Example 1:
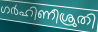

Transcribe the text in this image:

ഗർഹിണീശ്രുതി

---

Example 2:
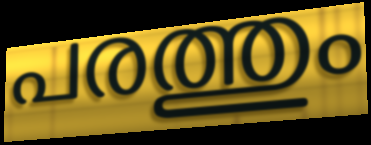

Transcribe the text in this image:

പരത്തും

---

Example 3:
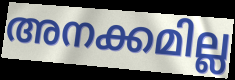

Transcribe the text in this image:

അനക്കമില്ല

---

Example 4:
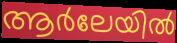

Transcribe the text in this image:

ആർലേയിൽ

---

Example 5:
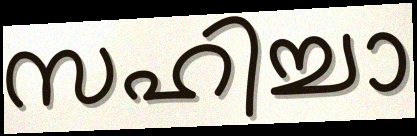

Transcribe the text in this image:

സഹിച്ചാ